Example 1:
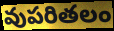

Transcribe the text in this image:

వుపరితలం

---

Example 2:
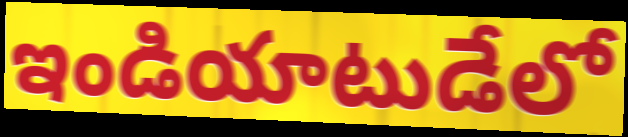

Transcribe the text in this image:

ఇండియాటుడేలో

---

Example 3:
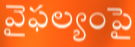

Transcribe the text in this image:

వైఫల్యంపై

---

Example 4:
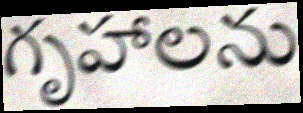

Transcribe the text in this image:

గృహాలను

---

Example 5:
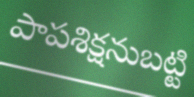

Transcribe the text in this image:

పాపశిక్షనుబట్టి